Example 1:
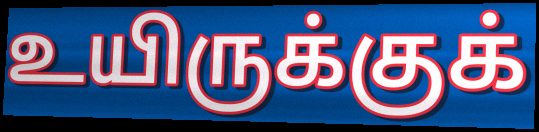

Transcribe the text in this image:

உயிருக்குக்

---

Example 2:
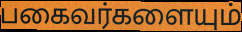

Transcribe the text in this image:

பகைவர்களையும்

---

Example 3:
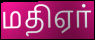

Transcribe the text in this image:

மதிஏர்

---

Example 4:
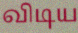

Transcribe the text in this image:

விடிய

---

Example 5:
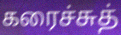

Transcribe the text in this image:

கரைச்சுத்